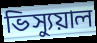
ভিস্যুয়াল